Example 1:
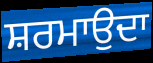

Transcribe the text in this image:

ਸ਼ਰਮਾਉਦਾ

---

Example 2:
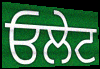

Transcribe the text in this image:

ਓਲੇਟ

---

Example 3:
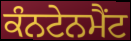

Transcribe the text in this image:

ਕੰਨਟੇਨਮੈਂਟ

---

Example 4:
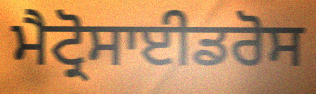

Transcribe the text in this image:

ਮੈਟ੍ਰੋਸਾਈਡਰੋਸ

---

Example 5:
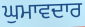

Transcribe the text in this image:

ਘੁਮਾਵਦਾਰ